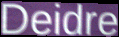
Deidre